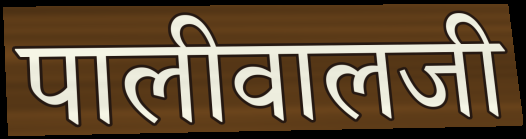
पालीवालजी